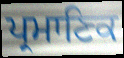
ਪ੍ਰਮਾਣਿਕ